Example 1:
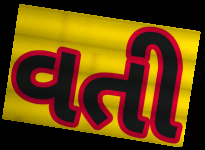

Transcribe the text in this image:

વતી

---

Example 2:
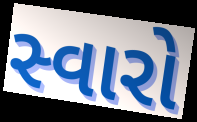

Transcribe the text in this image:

સ્વારો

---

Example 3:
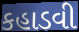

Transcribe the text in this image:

કહાડવી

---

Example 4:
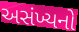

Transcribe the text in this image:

અસંખ્યનો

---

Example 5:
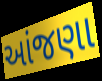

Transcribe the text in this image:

આંજણા